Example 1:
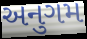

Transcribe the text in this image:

અનુગમ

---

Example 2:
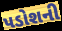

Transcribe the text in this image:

પડોશની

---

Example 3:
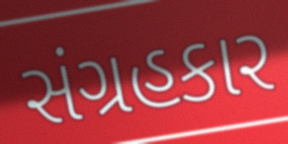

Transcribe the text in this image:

સંગ્રહકાર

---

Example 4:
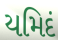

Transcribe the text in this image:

યમિદં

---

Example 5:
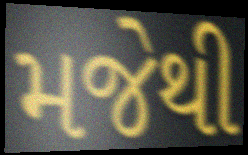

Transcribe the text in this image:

મજેથી